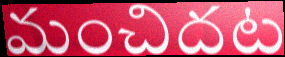
మంచిదట